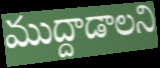
ముద్దాడాలని